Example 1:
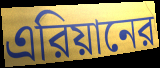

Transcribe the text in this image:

এরিয়ানের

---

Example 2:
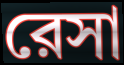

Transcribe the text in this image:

রেসা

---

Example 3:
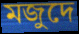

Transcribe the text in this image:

মজুদে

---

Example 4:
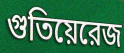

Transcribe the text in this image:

গুতিয়েরেজ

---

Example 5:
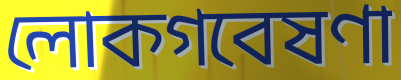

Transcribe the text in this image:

লোকগবেষণা